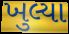
ખુલ્યા